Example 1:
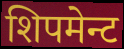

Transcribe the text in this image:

शिपमेन्ट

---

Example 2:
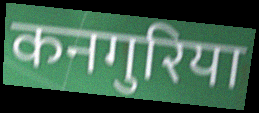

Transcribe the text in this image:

कनगुरिया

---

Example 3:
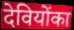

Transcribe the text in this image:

देवियोंका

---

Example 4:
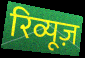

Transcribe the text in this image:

रिव्यूज़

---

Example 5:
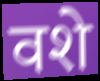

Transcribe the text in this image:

वशे